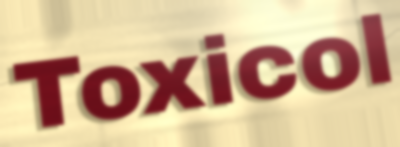
Toxicol